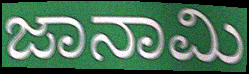
ಜಾನಾಮಿ